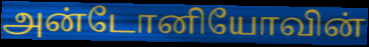
அன்டோனியோவின்